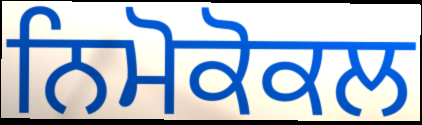
ਨਿਮੋਕੋਕਲ